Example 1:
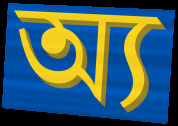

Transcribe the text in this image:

অ্য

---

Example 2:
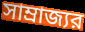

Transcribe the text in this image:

সাম্রাজ্যর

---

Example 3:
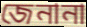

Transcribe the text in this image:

জেনানা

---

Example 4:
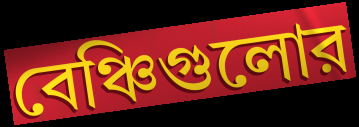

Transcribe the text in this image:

বেঞ্চিগুলোর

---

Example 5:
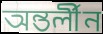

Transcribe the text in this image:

অন্তর্লীন